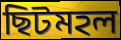
ছিটমহল